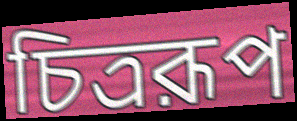
চিত্ররূপ